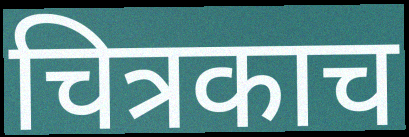
चित्रकाच